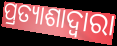
ପ୍ରତ୍ୟାଶାଦ୍ୱାରା